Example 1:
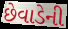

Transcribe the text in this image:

છેવાડેની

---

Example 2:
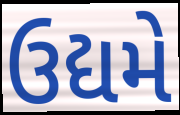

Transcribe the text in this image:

ઉદ્યમે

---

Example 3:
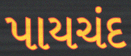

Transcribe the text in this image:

પાયચંદ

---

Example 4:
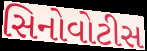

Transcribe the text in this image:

સિનોવોટીસ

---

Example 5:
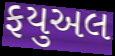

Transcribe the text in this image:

ફયુઅલ